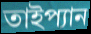
তাইপ্যান